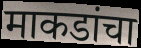
माकडांचा